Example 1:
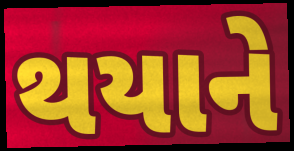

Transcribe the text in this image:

થયાને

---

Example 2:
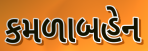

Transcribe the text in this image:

કમળાબહેન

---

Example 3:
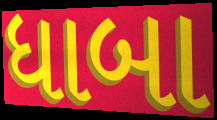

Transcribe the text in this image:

ધાબા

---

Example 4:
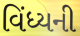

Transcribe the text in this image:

વિંધ્યની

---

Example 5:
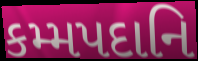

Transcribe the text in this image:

કમ્મપદાનિ